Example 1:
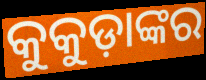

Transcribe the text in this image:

କୁକୁଡ଼ାଙ୍କର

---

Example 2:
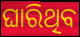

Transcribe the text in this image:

ଘାରିଥିବ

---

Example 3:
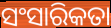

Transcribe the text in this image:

ସଂସାରିକତା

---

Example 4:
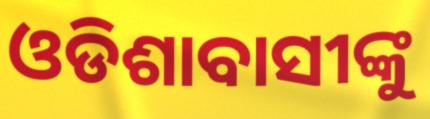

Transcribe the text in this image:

ଓଡିଶାବାସୀଙ୍କୁ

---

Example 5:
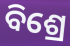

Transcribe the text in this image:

ବିଶ୍ରେ